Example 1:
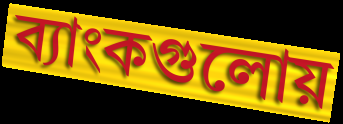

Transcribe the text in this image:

ব্যাংকগুলোয়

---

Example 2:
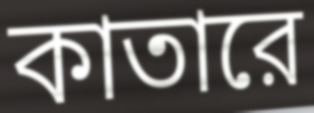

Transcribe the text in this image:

কাতারে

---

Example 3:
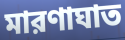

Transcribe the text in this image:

মারণাঘাত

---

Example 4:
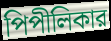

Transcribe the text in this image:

পিপীলিকার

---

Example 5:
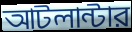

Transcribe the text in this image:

আটলান্টার